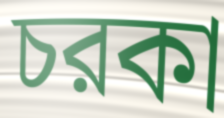
চরকা